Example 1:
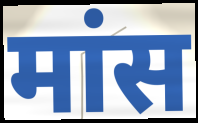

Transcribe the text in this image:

मांस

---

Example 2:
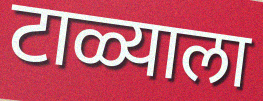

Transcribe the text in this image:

टाळ्याला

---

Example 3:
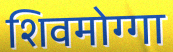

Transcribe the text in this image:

शिवमोग्गा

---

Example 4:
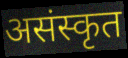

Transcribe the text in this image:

असंस्कृत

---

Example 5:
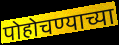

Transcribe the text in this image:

पोहोचण्याच्या